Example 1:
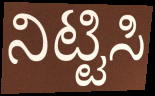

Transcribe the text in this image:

ನಿಟ್ಟಿಸಿ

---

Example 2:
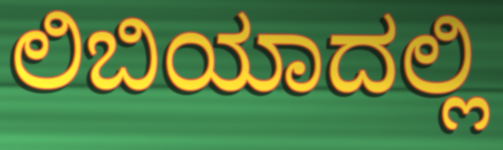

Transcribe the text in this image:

ಲಿಬಿಯಾದಲ್ಲಿ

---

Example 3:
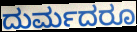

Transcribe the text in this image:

ದುರ್ಮದರೂ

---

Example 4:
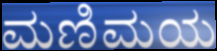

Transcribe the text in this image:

ಮಣಿಮಯ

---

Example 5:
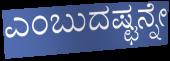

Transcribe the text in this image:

ಎಂಬುದಷ್ಟನ್ನೇ